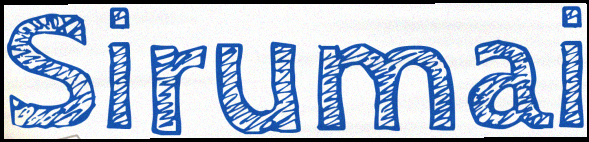
Sirumai